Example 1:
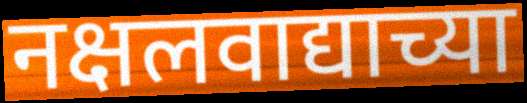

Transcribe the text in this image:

नक्षलवाद्याच्या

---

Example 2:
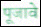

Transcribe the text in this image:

पूजावे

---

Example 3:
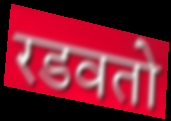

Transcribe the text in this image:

रडवतो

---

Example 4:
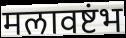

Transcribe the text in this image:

मलावष्टंभ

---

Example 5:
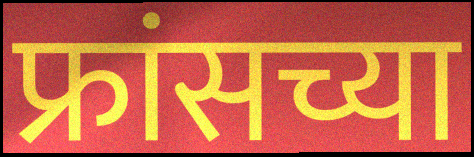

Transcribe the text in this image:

फ्रांसच्या